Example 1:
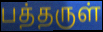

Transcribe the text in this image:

பத்தருள்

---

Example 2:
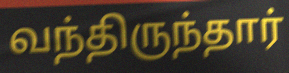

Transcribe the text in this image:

வந்திருந்தார்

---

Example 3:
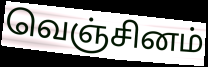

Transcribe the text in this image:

வெஞ்சினம்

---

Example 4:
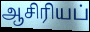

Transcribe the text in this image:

ஆசிரியப்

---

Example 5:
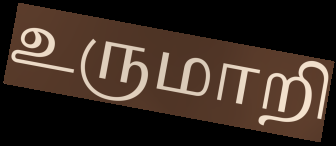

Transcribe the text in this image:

உருமாறி